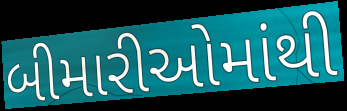
બીમારીઓમાંથી